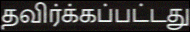
தவிர்க்கப்பட்டது